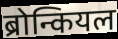
ब्रोन्कियल